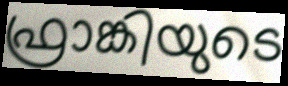
ഫ്രാങ്കിയുടെ